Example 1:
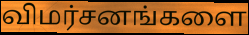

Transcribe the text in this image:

விமர்சனங்களை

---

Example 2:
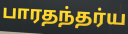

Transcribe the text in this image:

பாரதந்தர்ய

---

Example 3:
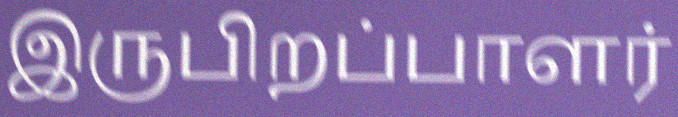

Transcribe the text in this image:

இருபிறப்பாளர்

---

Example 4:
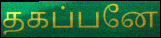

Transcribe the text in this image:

தகப்பனே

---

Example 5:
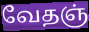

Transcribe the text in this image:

வேதஞ்